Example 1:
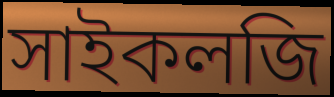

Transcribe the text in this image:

সাইকলজি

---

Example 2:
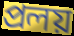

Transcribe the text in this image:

প্রলয়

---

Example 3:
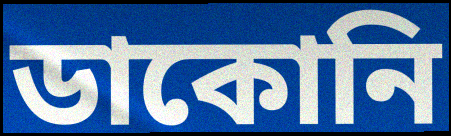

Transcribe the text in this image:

ডাকোনি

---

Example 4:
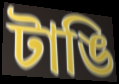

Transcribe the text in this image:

টাঙি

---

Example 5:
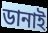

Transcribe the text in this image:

ডানাই